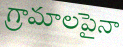
గ్రామాలపైనా